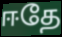
ஈதே